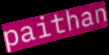
paithan